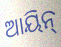
ଆୟିନ୍